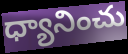
ధ్యానించు